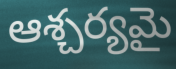
ఆశ్చర్యమై